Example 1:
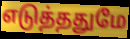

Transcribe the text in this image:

எடுத்ததுமே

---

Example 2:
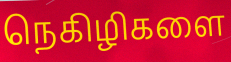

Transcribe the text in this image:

நெகிழிகளை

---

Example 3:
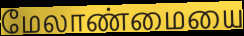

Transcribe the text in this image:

மேலாண்மையை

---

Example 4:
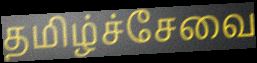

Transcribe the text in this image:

தமிழ்ச்சேவை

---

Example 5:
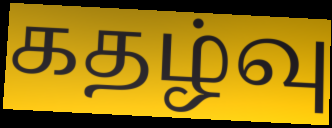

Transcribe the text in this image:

கதழ்வு